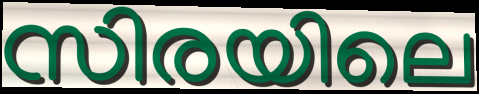
സിരയിലെ